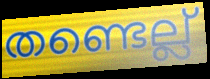
തണ്ടെല്ല്